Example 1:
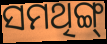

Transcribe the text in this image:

ସମଥିଙ୍ଗ୍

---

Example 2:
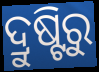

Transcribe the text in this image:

ଦ୍ରୁଷ୍ଟିରୁ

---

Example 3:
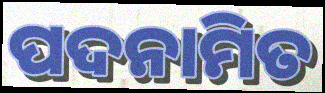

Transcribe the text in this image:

ପଦନାମିତ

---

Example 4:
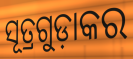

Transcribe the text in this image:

ସୂତ୍ରଗୁଡ଼ାକର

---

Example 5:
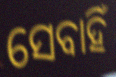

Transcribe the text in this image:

ସେବାହିଁ